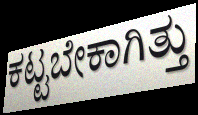
ಕಟ್ಟಬೇಕಾಗಿತ್ತು